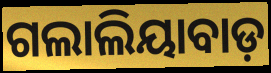
ଗଲାଲିୟାବାଡ଼